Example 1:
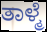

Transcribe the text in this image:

ತಾಳ್ಮೆ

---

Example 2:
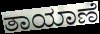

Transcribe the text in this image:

ತಾಯಾಣೆ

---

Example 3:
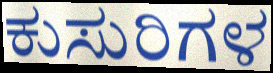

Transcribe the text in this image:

ಕುಸುರಿಗಳ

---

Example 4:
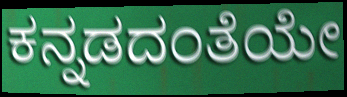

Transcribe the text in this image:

ಕನ್ನಡದಂತೆಯೇ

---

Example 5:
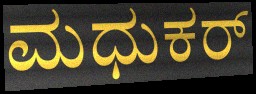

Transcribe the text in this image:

ಮಧುಕರ್